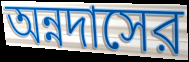
অন্নদাসের